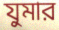
যুমার